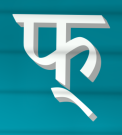
फ्